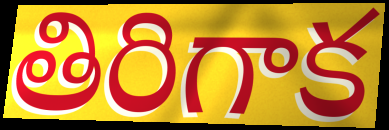
తిరిగాక